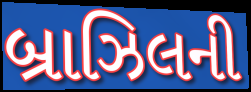
બ્રાઝિલની